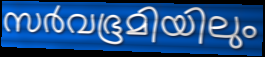
സർവഭൂമിയിലും